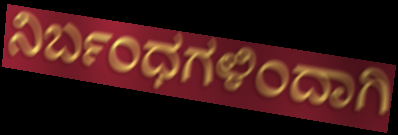
ನಿರ್ಬಂಧಗಳಿಂದಾಗಿ